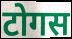
टोगस